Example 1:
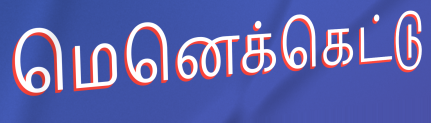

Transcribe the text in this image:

மெனெக்கெட்டு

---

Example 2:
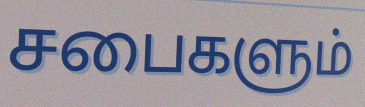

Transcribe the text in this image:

சபைகளும்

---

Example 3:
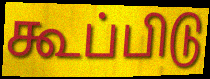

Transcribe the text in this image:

கூப்பிடு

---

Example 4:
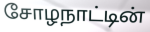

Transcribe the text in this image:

சோழநாட்டின்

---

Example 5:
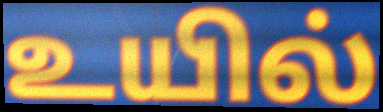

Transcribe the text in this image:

உயில்